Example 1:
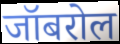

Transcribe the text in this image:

जॉबरोल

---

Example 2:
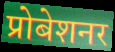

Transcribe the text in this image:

प्रोबेशनर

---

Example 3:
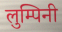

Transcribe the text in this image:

लुम्पिनी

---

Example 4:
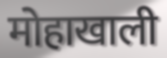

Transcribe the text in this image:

मोहाखाली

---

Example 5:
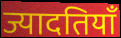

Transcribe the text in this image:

ज्यादतियाँ